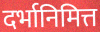
दर्भानिमित्त